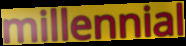
millennial